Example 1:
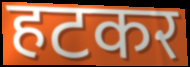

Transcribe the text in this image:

हटकर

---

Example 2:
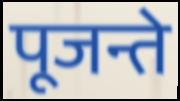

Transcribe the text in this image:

पूजन्ते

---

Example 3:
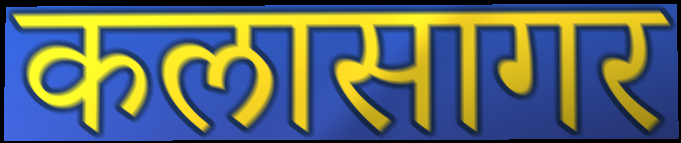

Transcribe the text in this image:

कलासागर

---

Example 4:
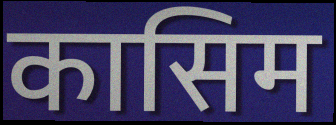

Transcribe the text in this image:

कासिम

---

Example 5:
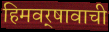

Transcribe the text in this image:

हिमवर्षावाची